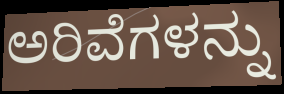
ಅರಿವೆಗಳನ್ನು